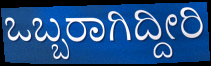
ಒಬ್ಬರಾಗಿದ್ದೀರಿ